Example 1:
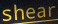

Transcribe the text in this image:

shear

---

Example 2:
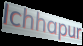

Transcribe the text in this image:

Ichhapur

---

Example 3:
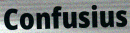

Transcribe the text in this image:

Confusius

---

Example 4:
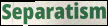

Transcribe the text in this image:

Separatism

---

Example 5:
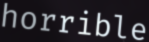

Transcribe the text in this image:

horrible